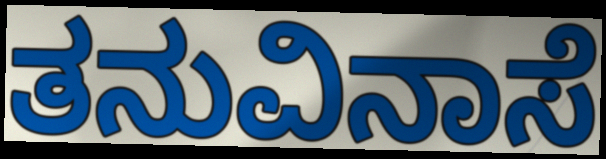
ತನುವಿನಾಸೆ